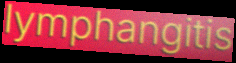
lymphangitis